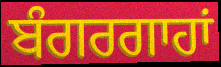
ਬੰਗਰਗਾਹਾਂ